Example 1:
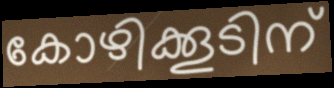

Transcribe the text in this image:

കോഴിക്കൂടിന്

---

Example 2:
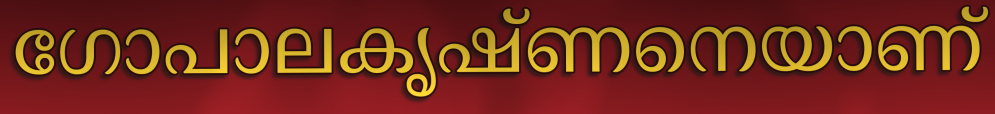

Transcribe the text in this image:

ഗോപാലകൃഷ്ണനെയാണ്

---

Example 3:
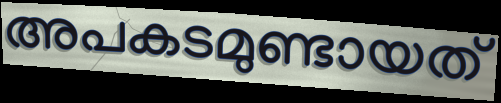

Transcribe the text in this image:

അപകടമുണ്ടായത്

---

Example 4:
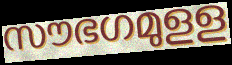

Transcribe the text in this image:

സൗഭഗമുളള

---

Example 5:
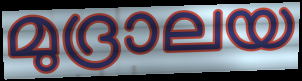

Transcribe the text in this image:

മുദ്രാലയ